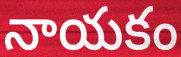
నాయకం